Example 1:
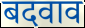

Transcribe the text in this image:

बदवाव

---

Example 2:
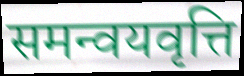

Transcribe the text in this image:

समन्वयवृत्ति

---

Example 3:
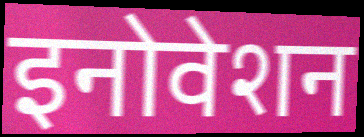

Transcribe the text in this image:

इनोवेशन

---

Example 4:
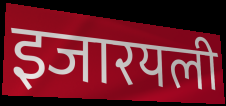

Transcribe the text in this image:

इजारयली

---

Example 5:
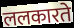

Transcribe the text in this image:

ललकारते